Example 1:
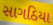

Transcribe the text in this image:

સાગઠિયા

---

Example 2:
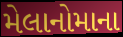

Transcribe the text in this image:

મેલાનોમાના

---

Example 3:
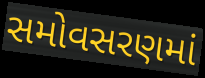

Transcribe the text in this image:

સમોવસરણમાં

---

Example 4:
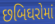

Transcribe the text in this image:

છબિઘરોમાં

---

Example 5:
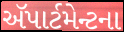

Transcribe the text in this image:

ઍપાર્ટમેન્ટના